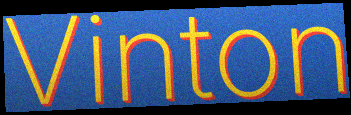
Vinton